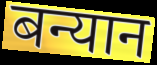
बन्यान